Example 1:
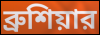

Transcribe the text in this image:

ব্রুশিয়ার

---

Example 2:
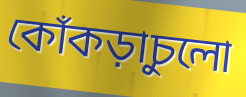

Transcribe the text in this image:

কোঁকড়াচুলো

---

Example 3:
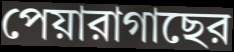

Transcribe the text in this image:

পেয়ারাগাছের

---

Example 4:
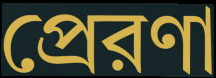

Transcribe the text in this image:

প্রেরণা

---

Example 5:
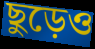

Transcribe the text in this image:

ছুড়েও